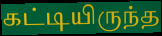
கட்டியிருந்த